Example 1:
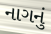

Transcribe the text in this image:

નાગનું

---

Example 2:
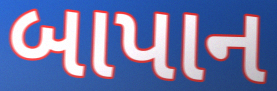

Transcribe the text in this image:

બાપાન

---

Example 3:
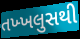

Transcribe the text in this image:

તખ્ખલુસથી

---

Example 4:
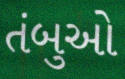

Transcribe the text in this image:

તંબુઓ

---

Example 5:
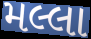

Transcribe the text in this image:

મલ્લા